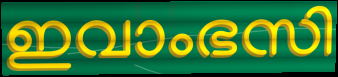
ഇവാംഭസി